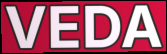
VEDA